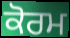
ਕੋਰਮ